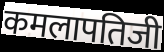
कमलापतिजी